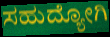
ಸಹುದ್ಯೋಗಿ